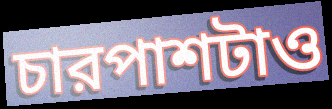
চারপাশটাও